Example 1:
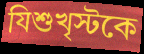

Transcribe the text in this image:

যিশুখৃস্টকে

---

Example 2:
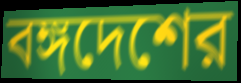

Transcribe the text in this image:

বঙ্গদেশের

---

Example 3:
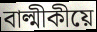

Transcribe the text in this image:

বাল্মীকীয়ে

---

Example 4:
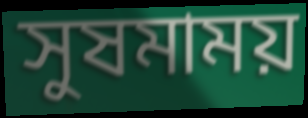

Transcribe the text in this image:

সুষমাময়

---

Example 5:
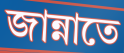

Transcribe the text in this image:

জান্নাতে